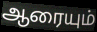
ஆரையும்